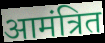
आमंत्रित